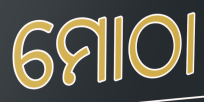
ମୋଠା